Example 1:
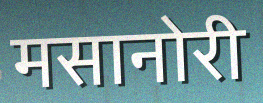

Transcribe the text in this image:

मसानोरी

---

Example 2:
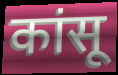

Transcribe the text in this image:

कांसू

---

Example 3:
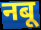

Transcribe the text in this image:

नबू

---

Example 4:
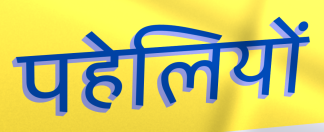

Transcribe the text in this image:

पहेलियों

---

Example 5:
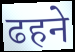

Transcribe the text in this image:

ढहने